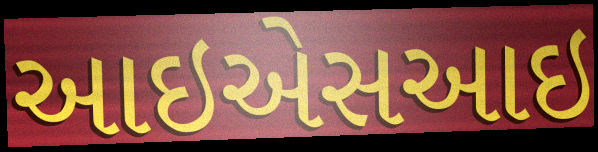
આઇએસઆઇ